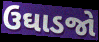
ઉઘાડજો